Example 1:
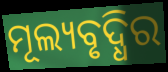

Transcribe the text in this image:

ମୂଲ୍ୟବୃଦ୍ଧିର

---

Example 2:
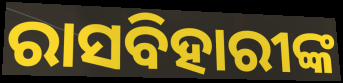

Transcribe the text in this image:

ରାସବିହାରୀଙ୍କ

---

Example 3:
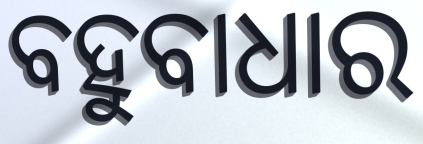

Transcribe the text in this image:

ବହୁବାଧାର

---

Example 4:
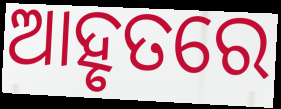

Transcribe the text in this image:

ଆହୃତରେ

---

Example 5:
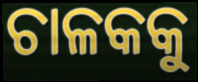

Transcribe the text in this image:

ଚାଳକକୁ